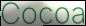
Cocoa